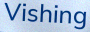
Vishing